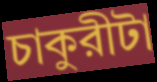
চাকুরীটা